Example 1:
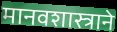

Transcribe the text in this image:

मानवशास्त्राने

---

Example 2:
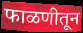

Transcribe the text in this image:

फाळणीतून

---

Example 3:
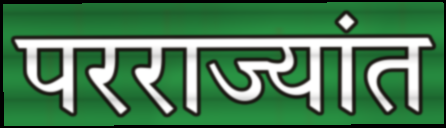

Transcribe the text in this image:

परराज्यांत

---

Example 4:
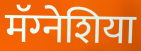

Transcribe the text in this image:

मॅग्‍नेशिया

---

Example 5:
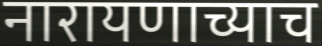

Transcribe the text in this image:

नारायणाच्याच